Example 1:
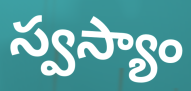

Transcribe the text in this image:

స్వస్యాం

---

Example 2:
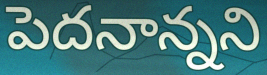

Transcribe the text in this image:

పెదనాన్నని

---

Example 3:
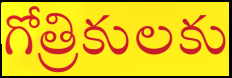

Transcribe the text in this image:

గోత్రికులకు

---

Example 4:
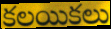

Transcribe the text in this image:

కలయికలు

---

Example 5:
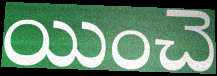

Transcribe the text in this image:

యించె